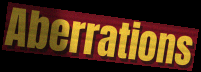
Aberrations